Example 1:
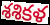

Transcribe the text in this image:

శశికళ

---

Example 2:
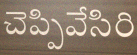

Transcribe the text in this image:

చెప్పివేసిరి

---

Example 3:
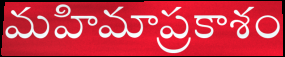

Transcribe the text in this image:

మహిమాప్రకాశం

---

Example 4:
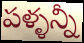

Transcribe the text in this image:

పళ్ళన్నీ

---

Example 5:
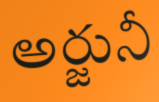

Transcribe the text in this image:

అర్జునీ